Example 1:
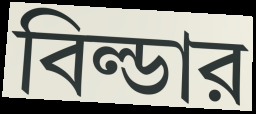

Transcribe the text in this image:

বিল্ডার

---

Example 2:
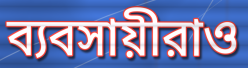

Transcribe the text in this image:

ব্যবসায়ীরাও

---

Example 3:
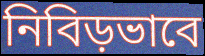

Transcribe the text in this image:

নিবিড়ভাবে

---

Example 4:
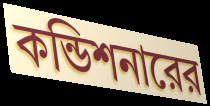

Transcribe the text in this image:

কন্ডিশনারের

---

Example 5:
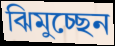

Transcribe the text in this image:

ঝিমুচ্ছেন